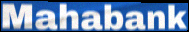
Mahabank